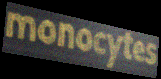
monocytes